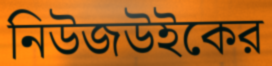
নিউজউইকের